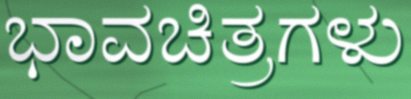
ಭಾವಚಿತ್ರಗಳು